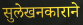
सुलेखनकाराने